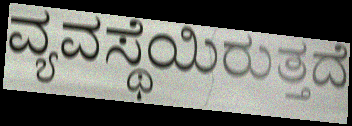
ವ್ಯವಸ್ಥೆಯಿರುತ್ತದೆ